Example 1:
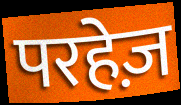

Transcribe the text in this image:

परहेज़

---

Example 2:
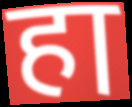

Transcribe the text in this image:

हा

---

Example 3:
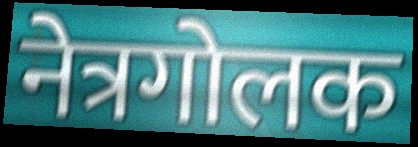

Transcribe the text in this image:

नेत्रगोलक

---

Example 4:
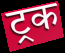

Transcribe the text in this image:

ट्रक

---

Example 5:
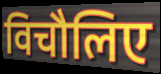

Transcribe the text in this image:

विचौलिए